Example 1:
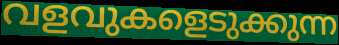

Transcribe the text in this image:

വളവുകളെടുക്കുന്ന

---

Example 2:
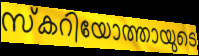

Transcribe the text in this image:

സ്കറിയോത്തായുടെ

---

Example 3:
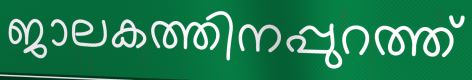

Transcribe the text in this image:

ജാലകത്തിനപ്പുറത്ത്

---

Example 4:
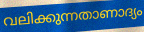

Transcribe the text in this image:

വലിക്കുന്നതാണാദ്യം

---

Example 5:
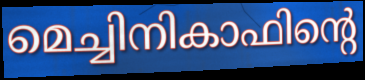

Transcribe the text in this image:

മെച്ചിനികാഫിന്റെ